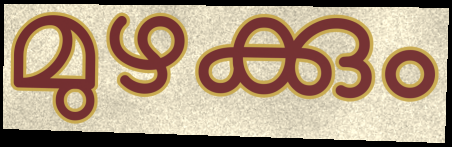
മുഴക്കും